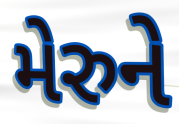
મેરુને